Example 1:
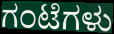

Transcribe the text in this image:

ಗಂಟೆಗಳು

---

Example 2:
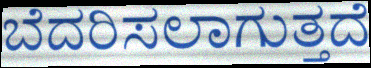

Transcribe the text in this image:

ಬೆದರಿಸಲಾಗುತ್ತದೆ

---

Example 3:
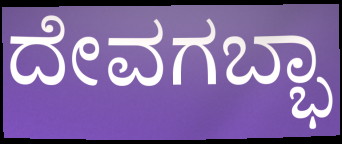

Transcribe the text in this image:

ದೇವಗಬ್ಭಾ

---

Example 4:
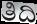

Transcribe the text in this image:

ತಿದಿ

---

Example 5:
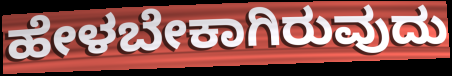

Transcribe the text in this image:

ಹೇಳಬೇಕಾಗಿರುವುದು